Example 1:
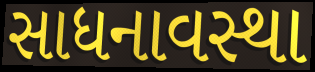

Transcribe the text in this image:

સાધનાવસ્થા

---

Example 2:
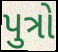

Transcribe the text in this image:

પુત્રો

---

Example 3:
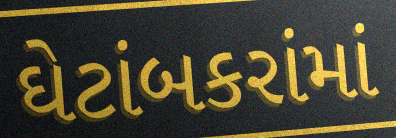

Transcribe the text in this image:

ઘેટાંબકરાંમાં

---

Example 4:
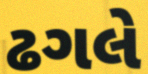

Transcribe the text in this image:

ઢગલે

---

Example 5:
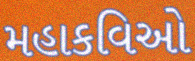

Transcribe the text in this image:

મહાકવિઓ